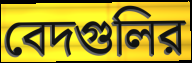
বেদগুলির